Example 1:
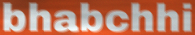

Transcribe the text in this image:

bhabchhi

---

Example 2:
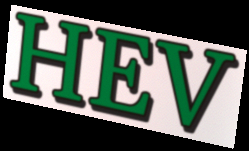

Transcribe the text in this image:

HEV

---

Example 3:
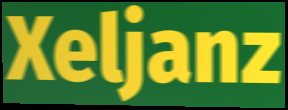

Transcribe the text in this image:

Xeljanz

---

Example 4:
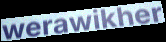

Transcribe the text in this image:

werawikher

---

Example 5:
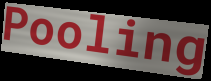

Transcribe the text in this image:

Pooling